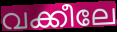
വക്കീലേ